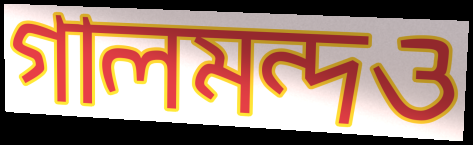
গালমন্দও